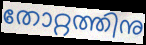
തോറ്റത്തിനു